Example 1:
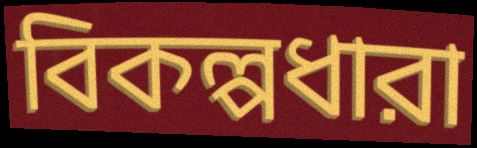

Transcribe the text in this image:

বিকল্পধারা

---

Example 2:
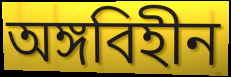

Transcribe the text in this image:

অঙ্গবিহীন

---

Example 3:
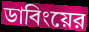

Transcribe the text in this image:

ডাবিংয়ের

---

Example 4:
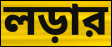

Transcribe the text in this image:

লড়ার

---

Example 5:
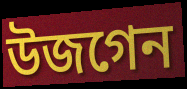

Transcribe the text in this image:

উজগেন